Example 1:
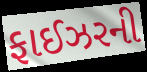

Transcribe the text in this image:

ફાઈઝરની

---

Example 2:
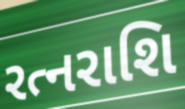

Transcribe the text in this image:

રત્નરાશિ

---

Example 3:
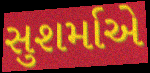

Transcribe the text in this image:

સુશર્માએ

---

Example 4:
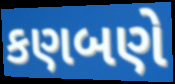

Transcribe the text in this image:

કણબણે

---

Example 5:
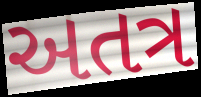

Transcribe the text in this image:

અતત્ર